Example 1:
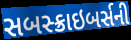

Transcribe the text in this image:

સબસ્ક્રાઇબર્સની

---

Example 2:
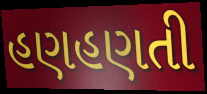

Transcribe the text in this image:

હણહણતી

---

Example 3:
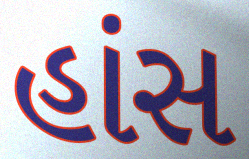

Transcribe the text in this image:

હાંસ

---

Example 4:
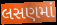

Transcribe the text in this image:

લસણમાં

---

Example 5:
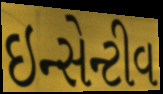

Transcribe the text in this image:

ઇન્સેન્ટીવ